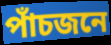
পাঁচজনে